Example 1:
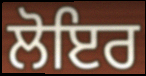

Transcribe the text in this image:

ਲੋਇਰ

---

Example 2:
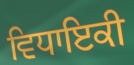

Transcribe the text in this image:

ਵਿਧਾਇਕੀ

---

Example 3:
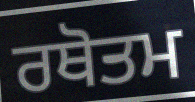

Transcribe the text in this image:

ਰਥੋਤਮ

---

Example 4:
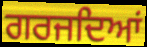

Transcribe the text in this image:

ਗਰਜਦਿਆਂ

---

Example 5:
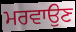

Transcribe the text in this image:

ਮਰਵਾਉਣ